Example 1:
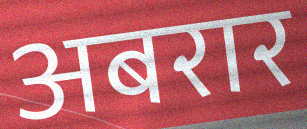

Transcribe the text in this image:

अबरार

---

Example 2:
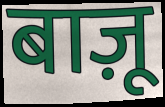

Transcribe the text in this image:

बाज़ू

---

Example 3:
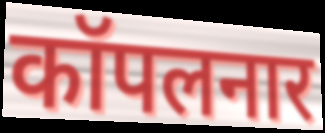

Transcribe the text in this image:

कॉपलनार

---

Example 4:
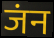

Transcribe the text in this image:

जंन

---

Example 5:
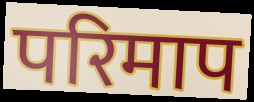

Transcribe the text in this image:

परिमाप